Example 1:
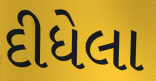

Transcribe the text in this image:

દીધેલા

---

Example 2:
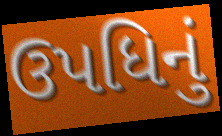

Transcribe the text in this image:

ઉપધિનું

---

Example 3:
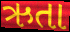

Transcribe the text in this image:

ઋતા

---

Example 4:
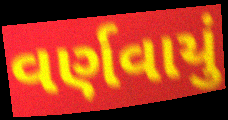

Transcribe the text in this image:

વર્ણવાયું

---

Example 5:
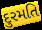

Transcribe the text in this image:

દુરમતિ